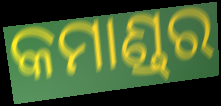
କମାଣ୍ଡ୍‌ର